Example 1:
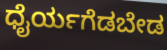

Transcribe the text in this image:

ಧೈರ್ಯಗೆಡಬೇಡ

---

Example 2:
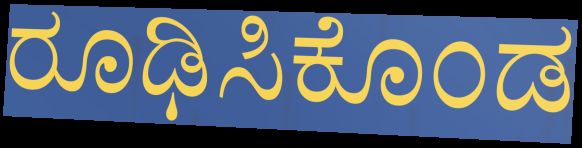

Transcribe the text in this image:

ರೂಢಿಸಿಕೊಂಡ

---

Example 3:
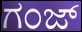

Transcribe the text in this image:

ಗಂಜ್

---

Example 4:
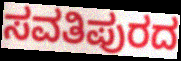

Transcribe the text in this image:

ಸವತಿಪುರದ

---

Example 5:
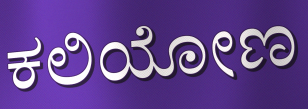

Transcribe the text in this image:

ಕಲಿಯೋಣ